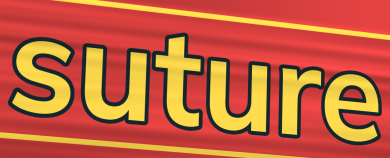
suture